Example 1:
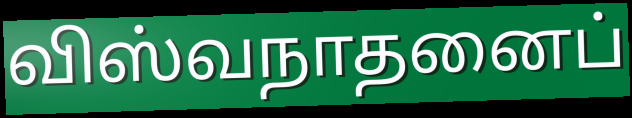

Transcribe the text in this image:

விஸ்வநாதனைப்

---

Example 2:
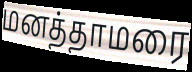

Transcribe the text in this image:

மனத்தாமரை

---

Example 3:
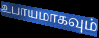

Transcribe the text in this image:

உபாயமாகவும்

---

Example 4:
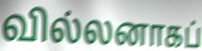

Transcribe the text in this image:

வில்லனாகப்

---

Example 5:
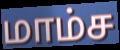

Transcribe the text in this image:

மாம்ச